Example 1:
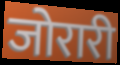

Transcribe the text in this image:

जोरारी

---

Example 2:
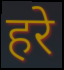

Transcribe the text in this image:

हरे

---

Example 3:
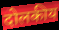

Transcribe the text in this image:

दोलकीय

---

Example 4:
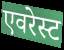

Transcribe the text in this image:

एवरेस्ट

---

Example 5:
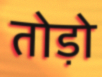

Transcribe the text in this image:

तोड़ो